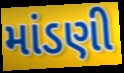
માંડણી